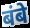
बंबे